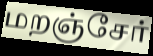
மறஞ்சேர்